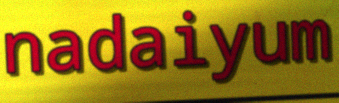
nadaiyum